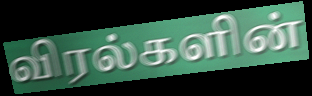
விரல்களின்